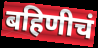
बहिणीचं